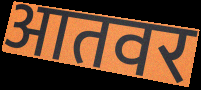
आतवर